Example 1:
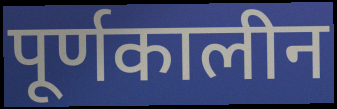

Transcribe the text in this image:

पूर्णकालीन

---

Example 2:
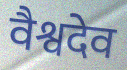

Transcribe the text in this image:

वैश्वदेव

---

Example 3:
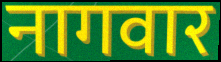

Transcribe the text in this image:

नागवार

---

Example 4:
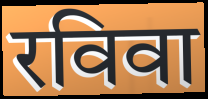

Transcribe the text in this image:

रविवा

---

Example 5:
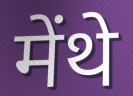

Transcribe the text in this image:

मेंथे